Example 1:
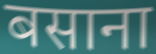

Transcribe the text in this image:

बसाना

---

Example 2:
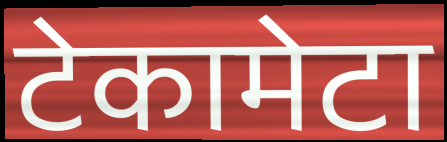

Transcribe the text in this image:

टेकामेटा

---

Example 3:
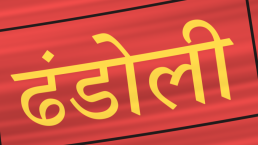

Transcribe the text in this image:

ढंडोली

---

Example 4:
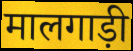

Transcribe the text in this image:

मालगाड़ी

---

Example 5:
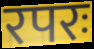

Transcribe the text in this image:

रपरः